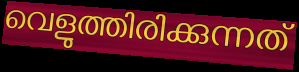
വെളുത്തിരിക്കുന്നത്